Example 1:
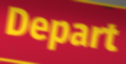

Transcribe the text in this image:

Depart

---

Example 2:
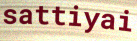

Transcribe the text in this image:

sattiyai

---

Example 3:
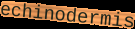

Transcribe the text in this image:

echinodermis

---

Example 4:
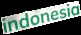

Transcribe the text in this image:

indonesia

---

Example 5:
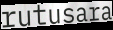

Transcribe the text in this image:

rutusara